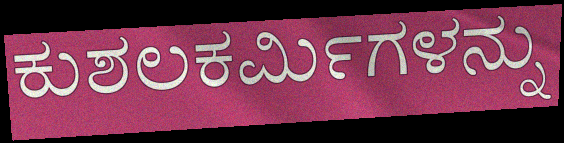
ಕುಶಲಕರ್ಮಿಗಳನ್ನು